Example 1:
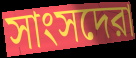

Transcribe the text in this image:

সাংসদেরা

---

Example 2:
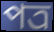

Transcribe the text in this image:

পত্র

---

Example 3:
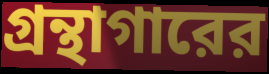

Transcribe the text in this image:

গ্রন্থাগারের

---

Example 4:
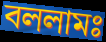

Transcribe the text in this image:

বললামঃ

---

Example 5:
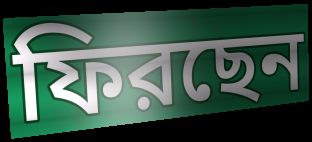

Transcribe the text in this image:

ফিরছেন